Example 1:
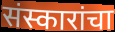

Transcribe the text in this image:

संस्कारांचा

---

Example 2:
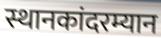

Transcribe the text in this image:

स्थानकांदरम्यान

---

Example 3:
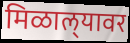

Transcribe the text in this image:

मिळाल्यावर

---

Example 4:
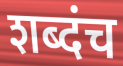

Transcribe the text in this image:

शब्दंच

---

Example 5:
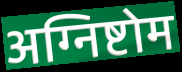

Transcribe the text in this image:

अग्निष्टोम